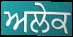
ਅਲੇਕ